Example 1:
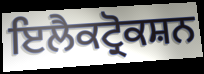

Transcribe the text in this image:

ਇਲੈਕਟ੍ਰੋਕਸ਼ਨ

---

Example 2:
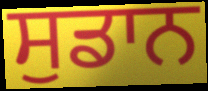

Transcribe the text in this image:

ਸੁਡਾਨ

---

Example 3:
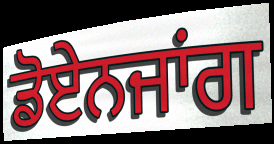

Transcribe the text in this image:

ਡੋਏਨਜਾਂਗ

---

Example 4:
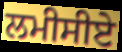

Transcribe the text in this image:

ਲਮੀਸੀਏ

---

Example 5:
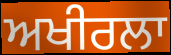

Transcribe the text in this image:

ਅਖੀਰਲਾ